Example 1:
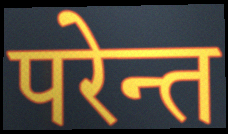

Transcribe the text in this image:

परेन्त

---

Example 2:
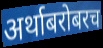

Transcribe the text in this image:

अर्थाबरोबरच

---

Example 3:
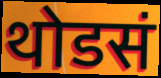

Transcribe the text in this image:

थोडसं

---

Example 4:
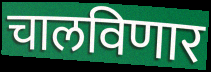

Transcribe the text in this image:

चालविणार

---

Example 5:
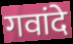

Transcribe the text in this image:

गवांदे